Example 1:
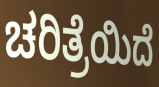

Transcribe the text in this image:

ಚರಿತ್ರೆಯಿದೆ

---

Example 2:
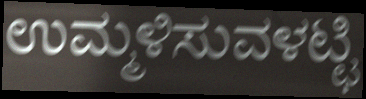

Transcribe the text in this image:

ಉಮ್ಮಳಿಸುವಳಟ್ಟಿ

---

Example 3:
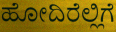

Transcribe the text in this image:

ಹೋದಿರೆಲ್ಲಿಗೆ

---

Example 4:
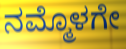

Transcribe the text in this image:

ನಮ್ಮೊಳಗೇ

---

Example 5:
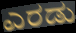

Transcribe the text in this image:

ಎರಡು